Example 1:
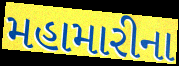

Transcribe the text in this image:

મહામારીના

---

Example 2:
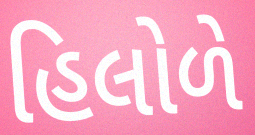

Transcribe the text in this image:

હિલોળે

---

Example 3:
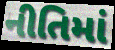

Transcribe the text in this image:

નીતિમાં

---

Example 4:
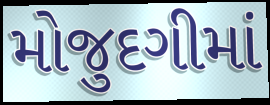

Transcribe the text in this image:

મોજુદગીમાં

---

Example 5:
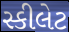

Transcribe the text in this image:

સ્કીલેટ